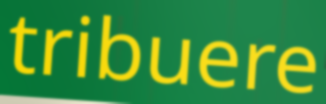
tribuere